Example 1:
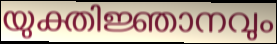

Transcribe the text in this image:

യുക്തിജ്ഞാനവും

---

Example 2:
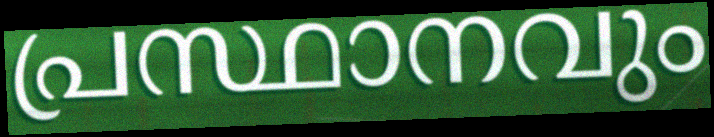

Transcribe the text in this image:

പ്രസ്ഥാനവും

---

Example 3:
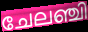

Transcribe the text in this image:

ചേലഞ്ചി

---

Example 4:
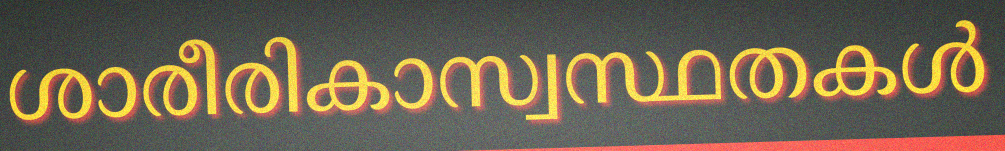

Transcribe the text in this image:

ശാരീരികാസ്വസ്ഥതകൾ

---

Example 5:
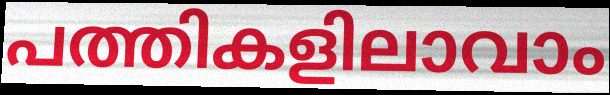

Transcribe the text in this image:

പത്തികളിലാവാം